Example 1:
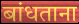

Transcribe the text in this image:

बांधताना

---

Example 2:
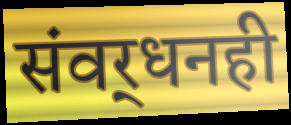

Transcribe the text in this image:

संवर्धनही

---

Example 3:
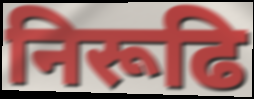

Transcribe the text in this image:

निरूढि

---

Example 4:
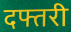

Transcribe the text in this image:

दफ्तरी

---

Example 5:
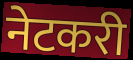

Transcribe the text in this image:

नेटकरी